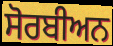
ਸੋਰਬੀਅਨ